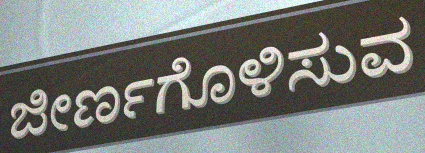
ಜೀರ್ಣಗೊಳಿಸುವ